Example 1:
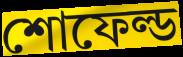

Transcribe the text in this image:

শোফেল্ড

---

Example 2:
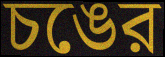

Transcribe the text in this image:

চঙের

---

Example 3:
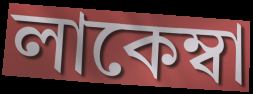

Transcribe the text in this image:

লাকেম্বা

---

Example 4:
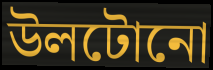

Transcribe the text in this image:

উলটোনো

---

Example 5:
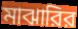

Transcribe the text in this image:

মাঝারির